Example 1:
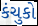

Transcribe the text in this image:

કંચુકો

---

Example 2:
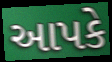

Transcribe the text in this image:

આપકે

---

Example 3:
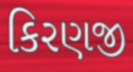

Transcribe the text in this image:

કિરણજી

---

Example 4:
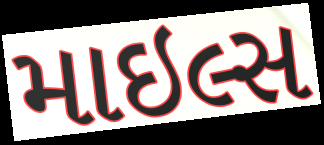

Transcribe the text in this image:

માઇલ્સ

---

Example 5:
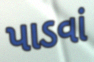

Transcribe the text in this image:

પાડવાં